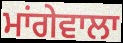
ਮਾਂਗੇਵਾਲਾ